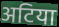
अटिया